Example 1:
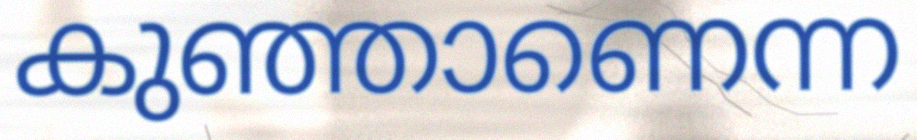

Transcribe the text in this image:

കുഞ്ഞാണെന്ന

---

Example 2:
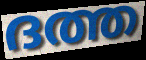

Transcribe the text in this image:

ദത്ത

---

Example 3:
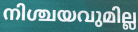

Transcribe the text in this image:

നിശ്ചയവുമില്ല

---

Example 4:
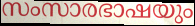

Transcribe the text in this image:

സംസാരഭാഷയും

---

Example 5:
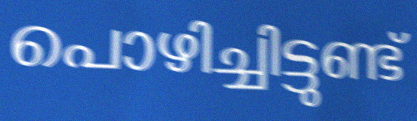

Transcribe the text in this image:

പൊഴിച്ചിട്ടുണ്ട്